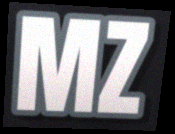
MZ